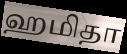
ஹமிதா